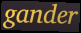
gander